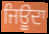
ਜਿਊੂਂਦਾ